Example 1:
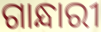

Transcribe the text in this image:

ଗାନ୍ଧାରୀ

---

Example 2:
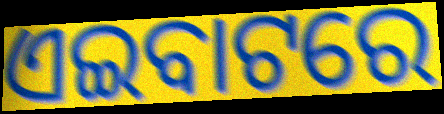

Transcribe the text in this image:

ଏଇବାଟରେ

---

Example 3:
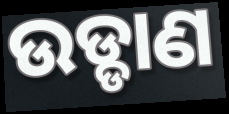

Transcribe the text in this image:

ଉଡ୍ଡାଣ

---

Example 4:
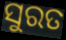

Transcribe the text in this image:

ସୁରତ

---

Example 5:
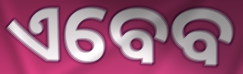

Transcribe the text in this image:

ଏବେବ